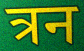
त्रन